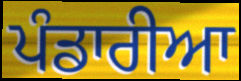
ਪੰਡਾਰੀਆ